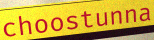
choostunna